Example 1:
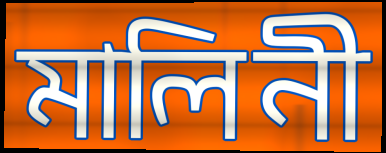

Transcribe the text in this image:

মালিনী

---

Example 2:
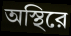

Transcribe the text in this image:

অস্থিরে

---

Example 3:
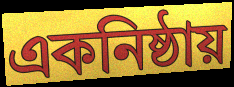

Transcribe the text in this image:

একনিষ্ঠায়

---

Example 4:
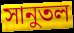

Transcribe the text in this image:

সানুতল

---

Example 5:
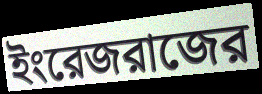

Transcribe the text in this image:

ইংরেজরাজের